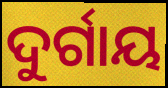
ଦୁର୍ଗାୟ